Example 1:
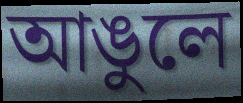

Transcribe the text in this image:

আঙুলে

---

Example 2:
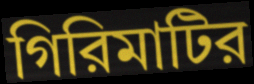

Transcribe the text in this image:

গিরিমাটির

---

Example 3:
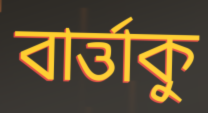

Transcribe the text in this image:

বার্ত্তাকু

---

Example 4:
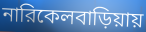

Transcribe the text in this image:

নারিকেলবাড়িয়ায়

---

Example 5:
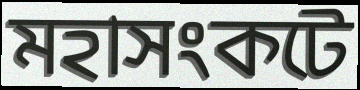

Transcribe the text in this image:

মহাসংকটে